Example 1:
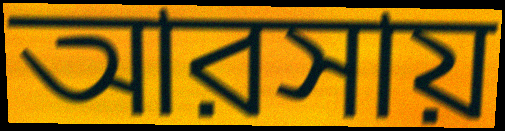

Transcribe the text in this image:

আরসায়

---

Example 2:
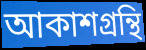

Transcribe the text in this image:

আকাশগ্রন্থি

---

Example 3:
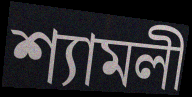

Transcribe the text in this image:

শ্যামলী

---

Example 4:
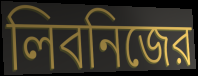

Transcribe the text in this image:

লিবনিজের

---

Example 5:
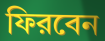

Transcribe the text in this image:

ফিরবেন